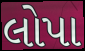
લોપા